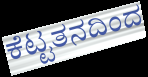
ಕೆಟ್ಟತನದಿಂದ